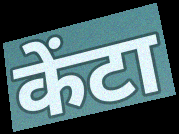
केंटा